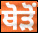
ਥੋੜੋਂ